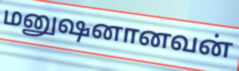
மனுஷனானவன்